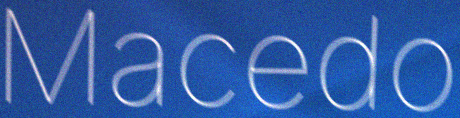
Macedo